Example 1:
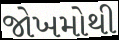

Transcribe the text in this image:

જોખમોથી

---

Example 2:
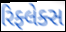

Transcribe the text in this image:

રિફ્લેક્સ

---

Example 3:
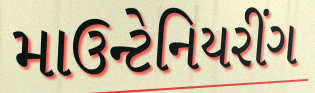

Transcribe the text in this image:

માઉન્ટેનિયરીંગ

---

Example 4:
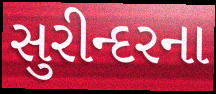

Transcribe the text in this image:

સુરીન્દરના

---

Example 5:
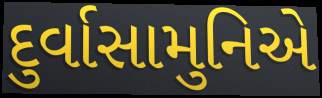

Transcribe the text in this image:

દુર્વાસામુનિએ